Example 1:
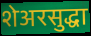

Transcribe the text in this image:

शेअरसुद्धा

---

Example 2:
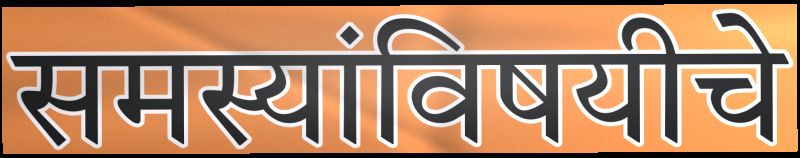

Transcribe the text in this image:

समस्यांविषयीचे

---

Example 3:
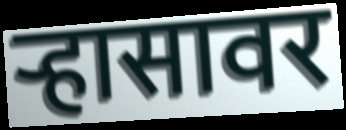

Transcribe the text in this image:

ऱ्हासावर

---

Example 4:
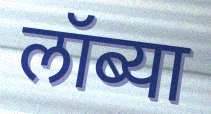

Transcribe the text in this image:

लॉब्या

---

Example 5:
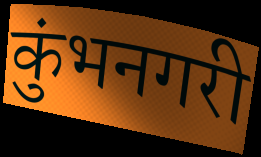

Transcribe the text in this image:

कुंभनगरी